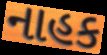
નાહક